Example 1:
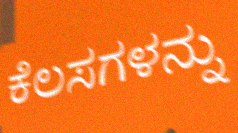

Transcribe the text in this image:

ಕೆಲಸಗಳನ್ನು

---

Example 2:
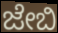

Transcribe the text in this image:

ಜೇಬಿ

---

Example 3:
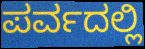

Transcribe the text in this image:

ಪರ್ವದಲ್ಲಿ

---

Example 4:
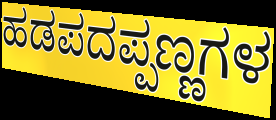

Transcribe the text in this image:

ಹಡಪದಪ್ಪಣ್ಣಗಳ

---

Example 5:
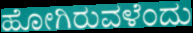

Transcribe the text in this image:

ಹೋಗಿರುವಳೆಂದು